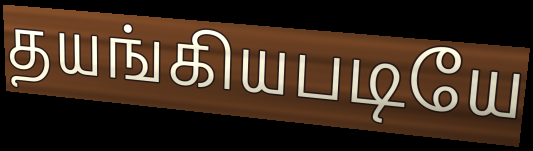
தயங்கியபடியே